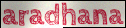
aradhana